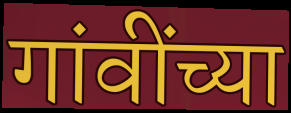
गांवींच्या